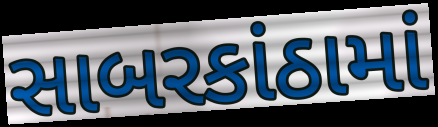
સાબરકાંઠામાં